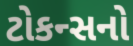
ટોકન્સનો